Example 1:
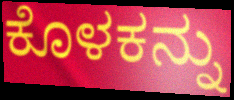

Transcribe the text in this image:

ಕೊಳಕನ್ನು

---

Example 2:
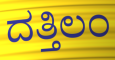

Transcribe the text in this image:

ದತ್ತಿಲಂ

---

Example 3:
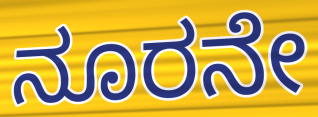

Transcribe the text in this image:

ನೂರನೇ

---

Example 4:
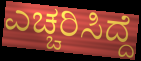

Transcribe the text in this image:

ಎಚ್ಚರಿಸಿದ್ದೆ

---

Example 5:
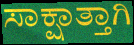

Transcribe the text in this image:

ಸಾಕ್ಷಾತ್ತಾಗಿ